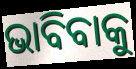
ଭାବିବାକୁ